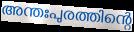
അന്തഃപുരത്തിന്റെ